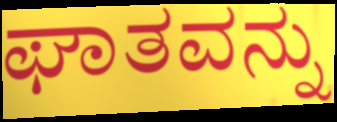
ಘಾತವನ್ನು